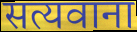
सत्यवाना